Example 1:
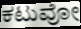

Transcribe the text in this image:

ಕಟುವೋ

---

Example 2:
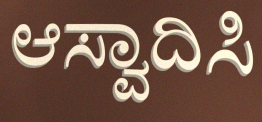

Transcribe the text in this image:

ಆಸ್ವಾದಿಸಿ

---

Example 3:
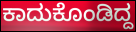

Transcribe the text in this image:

ಕಾದುಕೊಂಡಿದ್ದ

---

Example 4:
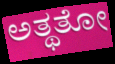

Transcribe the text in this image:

ಅತ್ಥತೋ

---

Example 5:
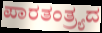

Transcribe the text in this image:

ಪಾರತಂತ್ರ್ಯದ